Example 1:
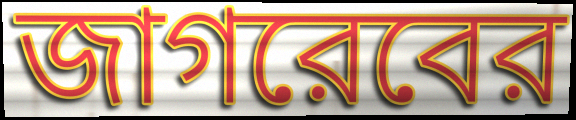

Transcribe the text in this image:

জাগরেবের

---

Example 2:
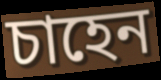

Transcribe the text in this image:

চাহেন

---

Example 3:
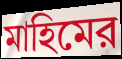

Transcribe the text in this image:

মাহিমের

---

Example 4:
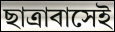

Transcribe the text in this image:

ছাত্রাবাসেই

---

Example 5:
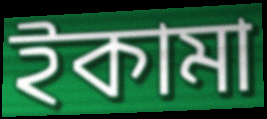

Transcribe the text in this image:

ইকামা